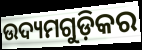
ଉଦ୍ୟମଗୁଡ଼ିକର